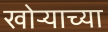
खोऱ्याच्या